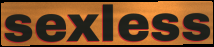
sexless